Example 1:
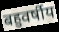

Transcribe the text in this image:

बहुवर्षीय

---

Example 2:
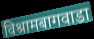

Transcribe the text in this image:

विश्रामबागवाडा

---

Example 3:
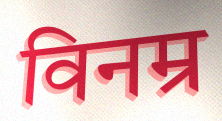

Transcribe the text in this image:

विनम्र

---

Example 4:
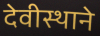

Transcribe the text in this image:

देवीस्थाने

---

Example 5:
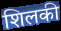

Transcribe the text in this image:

शिलकी